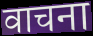
वाचना